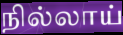
நில்லாய்